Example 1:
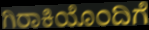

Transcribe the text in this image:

ಗಿರಾಕಿಯೊಂದಿಗೆ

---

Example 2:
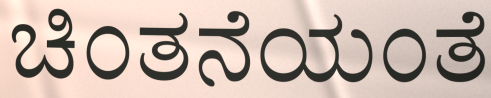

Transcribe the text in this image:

ಚಿಂತನೆಯಂತೆ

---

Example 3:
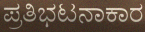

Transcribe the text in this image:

ಪ್ರತಿಭಟನಾಕಾರ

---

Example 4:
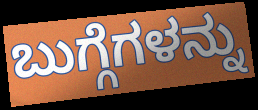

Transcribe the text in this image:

ಬುಗ್ಗೆಗಳನ್ನು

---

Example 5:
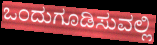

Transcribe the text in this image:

ಒಂದುಗೂಡಿಸುವಲ್ಲಿ